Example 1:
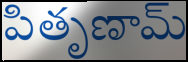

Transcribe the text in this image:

పితృణామ్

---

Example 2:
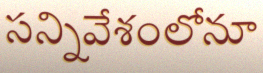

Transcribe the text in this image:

సన్నివేశంలోనూ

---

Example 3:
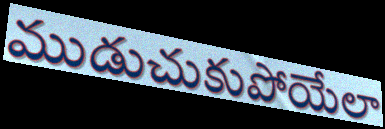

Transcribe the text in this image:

ముడుచుకుపోయేలా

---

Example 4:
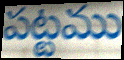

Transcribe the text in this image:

పట్టము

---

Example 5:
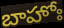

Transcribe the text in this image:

బాహోః